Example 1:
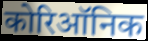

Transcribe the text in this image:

कोरिऑनिक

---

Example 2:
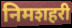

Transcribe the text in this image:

निमशहरी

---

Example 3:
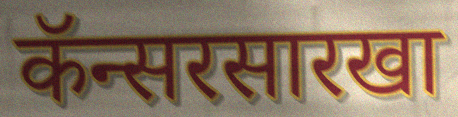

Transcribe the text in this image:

कॅन्सरसारखा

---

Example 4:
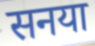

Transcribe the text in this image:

सनया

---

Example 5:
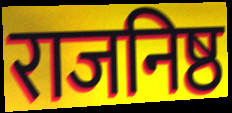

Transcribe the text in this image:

राजनिष्ठ